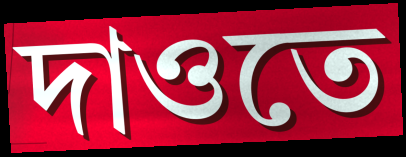
দাওতে